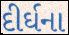
દીર્ઘના